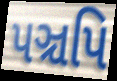
પઞ્ચપિ